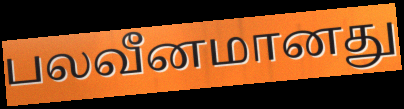
பலவீனமானது